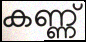
കണ്ണ്